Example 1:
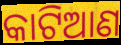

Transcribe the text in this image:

କାଟିଆଣ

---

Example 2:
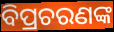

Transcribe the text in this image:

ବିପ୍ରଚରଣଙ୍କ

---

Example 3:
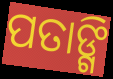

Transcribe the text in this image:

ପତାଙ୍ଗି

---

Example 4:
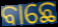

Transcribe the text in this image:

ବାଛେ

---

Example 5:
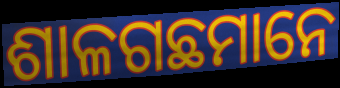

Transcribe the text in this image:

ଶାଳଗଛମାନେ